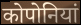
कोपोनियां